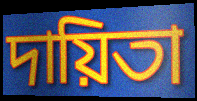
দায়িতা